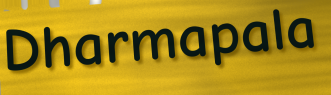
Dharmapala